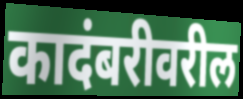
कादंबरीवरील